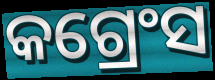
କଗ୍ରେଂସ